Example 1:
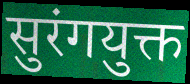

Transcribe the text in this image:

सुरंगयुक्त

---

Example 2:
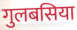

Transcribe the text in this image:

गुलबसिया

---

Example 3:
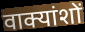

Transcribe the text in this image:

वाक्यांशों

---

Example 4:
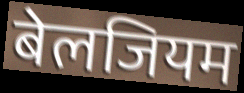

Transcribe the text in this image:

बेलजियम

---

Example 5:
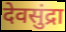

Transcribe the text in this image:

देवसुंद्रा